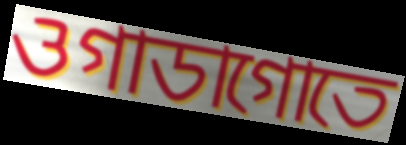
ওগাডাগোতে